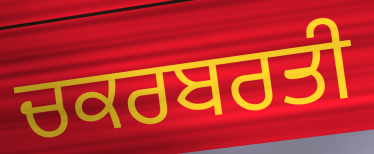
ਚਕਰਬਰਤੀ